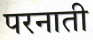
परनाती